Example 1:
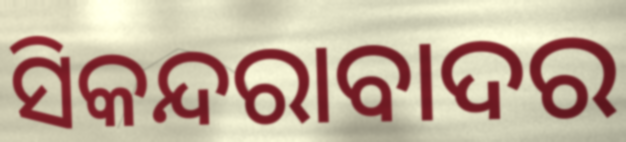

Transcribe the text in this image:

ସିକନ୍ଦରାବାଦର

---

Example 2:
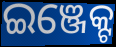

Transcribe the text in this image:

ଇଞ୍ଜେକ୍ଟ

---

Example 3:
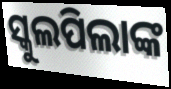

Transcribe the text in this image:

ସ୍କୁଲପିଲାଙ୍କ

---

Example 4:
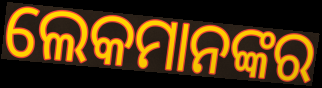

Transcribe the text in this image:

ଲେକମାନଙ୍କର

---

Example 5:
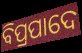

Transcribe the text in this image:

ବିପ୍ରପାଦେ